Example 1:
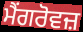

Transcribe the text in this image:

ਮੈਂਗਰੋਵਜ਼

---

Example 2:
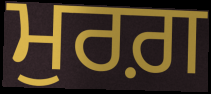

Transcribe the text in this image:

ਮੁਰਗ਼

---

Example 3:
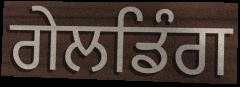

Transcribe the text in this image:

ਗੇਲਡਿੰਗ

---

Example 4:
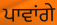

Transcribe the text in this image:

ਪਾਵਾਂਗੇ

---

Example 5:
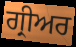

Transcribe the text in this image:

ਗ੍ਰੀਅਰ